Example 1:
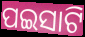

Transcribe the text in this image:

ପଇସାଟି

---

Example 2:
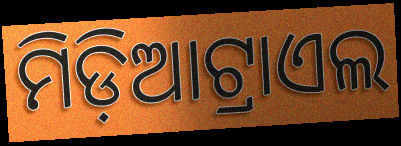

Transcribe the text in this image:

ମିଡ଼ିଆଟ୍ରାଏଲ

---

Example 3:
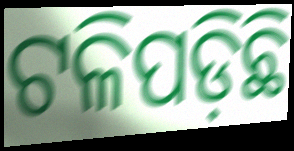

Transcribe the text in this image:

ଟଳିପଡ଼ିଛି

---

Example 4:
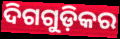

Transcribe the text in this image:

ଦିଗଗୁଡ଼ିକର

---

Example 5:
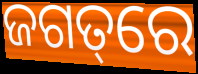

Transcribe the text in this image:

ଜଗତ୍‌ରେ